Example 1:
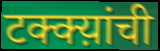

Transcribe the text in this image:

टक्क्य़ांची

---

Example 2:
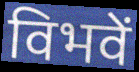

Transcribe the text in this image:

विभवें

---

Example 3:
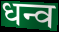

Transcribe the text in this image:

धन्व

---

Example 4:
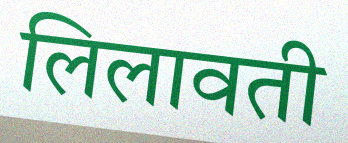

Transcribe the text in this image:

लिलावती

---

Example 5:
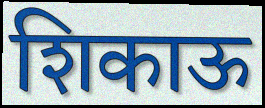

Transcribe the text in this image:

शिकाऊ